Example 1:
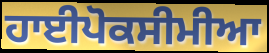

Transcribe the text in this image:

ਹਾਈਪੋਕਸੀਮੀਆ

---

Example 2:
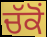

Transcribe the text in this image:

ਚੱਕੋਂ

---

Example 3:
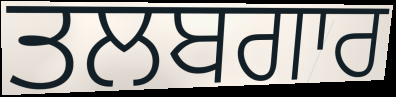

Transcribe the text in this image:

ਤਲਬਗਾਰ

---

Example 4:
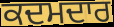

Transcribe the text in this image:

ਕਦਮਦਾਰ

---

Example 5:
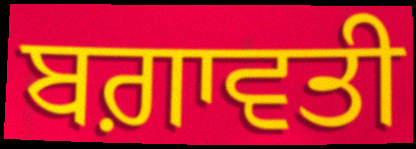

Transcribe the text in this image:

ਬਗ਼ਾਵਤੀ